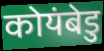
कोयंबेडु